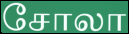
சோலா